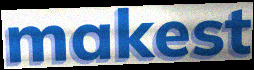
makest